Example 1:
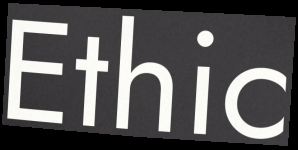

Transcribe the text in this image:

Ethic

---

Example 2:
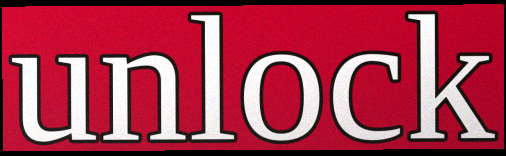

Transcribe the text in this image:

unlock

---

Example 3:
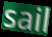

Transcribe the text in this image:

sail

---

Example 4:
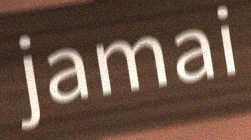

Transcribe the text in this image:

jamai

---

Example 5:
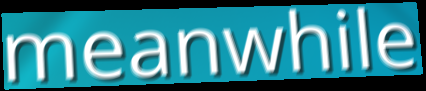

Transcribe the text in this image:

meanwhile